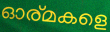
ഓര്മകളെ